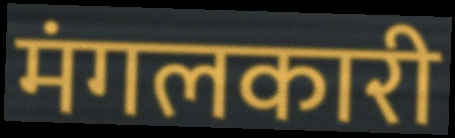
मंगलकारी